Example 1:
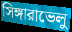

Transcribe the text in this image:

সিঙ্গারাভেলু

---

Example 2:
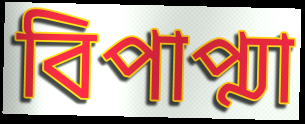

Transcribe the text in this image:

বিপাপ্মা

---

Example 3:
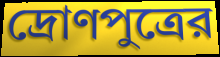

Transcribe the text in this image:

দ্রোণপুত্রের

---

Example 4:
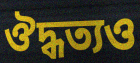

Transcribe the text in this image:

ঔদ্ধত্যও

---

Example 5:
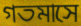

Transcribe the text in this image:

গতমাসে